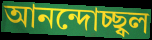
আনন্দোচ্ছ্বল